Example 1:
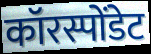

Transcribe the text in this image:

कॉरस्पोंडेट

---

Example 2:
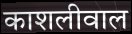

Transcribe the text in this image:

काशलीवाल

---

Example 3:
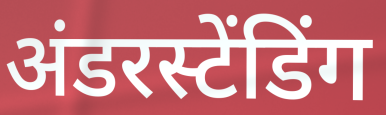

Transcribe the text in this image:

अंडरस्टेंडिंग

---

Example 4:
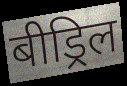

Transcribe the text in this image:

बीड्रिल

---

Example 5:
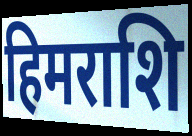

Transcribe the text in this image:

हिमराशि